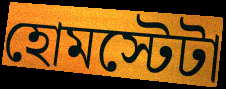
হোমস্টেটা